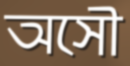
অসৌ